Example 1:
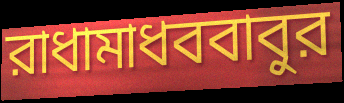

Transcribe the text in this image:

রাধামাধববাবুর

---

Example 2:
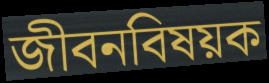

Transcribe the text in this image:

জীবনবিষয়ক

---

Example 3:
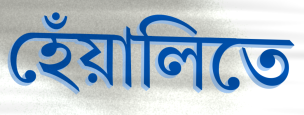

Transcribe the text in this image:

হেঁয়ালিতে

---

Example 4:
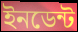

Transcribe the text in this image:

ইনডেন্ট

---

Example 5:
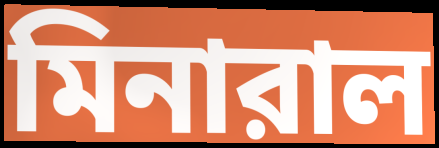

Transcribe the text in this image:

মিনারাল